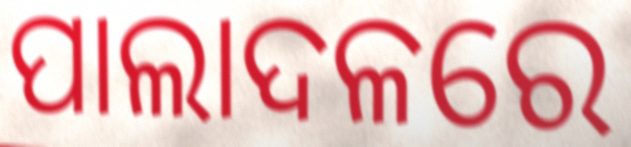
ପାଲାଦଳରେ